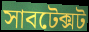
সাবটেক্সট